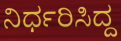
ನಿರ್ಧರಿಸಿದ್ದ